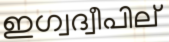
ഇഗ്വദ്വീപില്